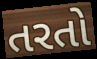
તરતો